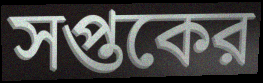
সপ্তকের